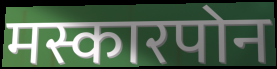
मस्कारपोन